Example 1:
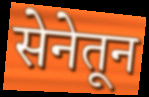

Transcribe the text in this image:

सेनेतून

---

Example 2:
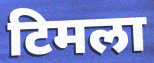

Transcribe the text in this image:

टिमला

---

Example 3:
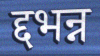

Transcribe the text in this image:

द्दभन्न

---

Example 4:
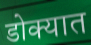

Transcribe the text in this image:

डोक्यात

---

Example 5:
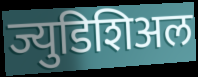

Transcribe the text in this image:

ज्युडिशिअल